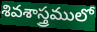
శివశాస్త్రములో